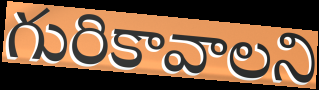
గురికావాలని